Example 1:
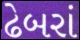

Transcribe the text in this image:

ઢેબરાં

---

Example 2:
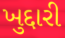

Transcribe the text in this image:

ખુદ્દારી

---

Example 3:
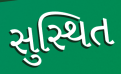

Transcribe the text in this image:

સુસ્થિત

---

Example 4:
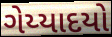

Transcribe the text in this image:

ગેય્યાદયો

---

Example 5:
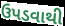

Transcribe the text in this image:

ઉપડવાથી